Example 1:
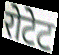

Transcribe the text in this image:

रोटेट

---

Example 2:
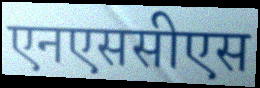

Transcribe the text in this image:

एनएससीएस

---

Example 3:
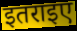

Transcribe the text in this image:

इतराइए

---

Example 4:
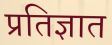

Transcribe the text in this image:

प्रतिज्ञात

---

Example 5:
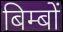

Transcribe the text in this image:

बिम्बों